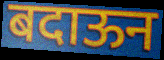
बदाऊन